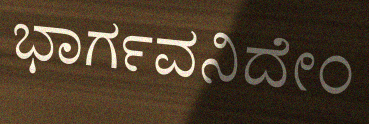
ಭಾರ್ಗವನಿದೇಂ